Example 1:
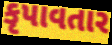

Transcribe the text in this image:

કૃપાવતાર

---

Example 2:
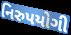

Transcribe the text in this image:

નિરુપયોગી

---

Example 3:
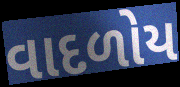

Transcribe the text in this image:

વાદળોય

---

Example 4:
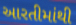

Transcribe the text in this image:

આરતીમાંથી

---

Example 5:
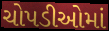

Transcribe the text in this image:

ચોપડીઓમાં